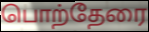
பொற்தேரை